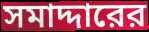
সমাদ্দারের